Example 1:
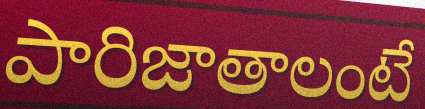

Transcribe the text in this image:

పారిజాతాలంటే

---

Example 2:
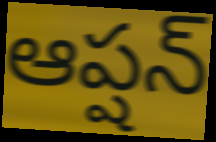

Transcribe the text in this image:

ఆప్షన్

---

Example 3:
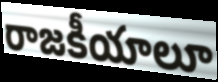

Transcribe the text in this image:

రాజకీయాలూ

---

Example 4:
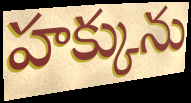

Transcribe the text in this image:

హక్కును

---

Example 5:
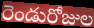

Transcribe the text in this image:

రెండురోజుల